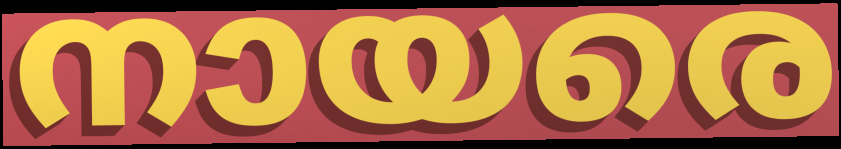
നായരെ